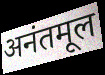
अनंतमूल